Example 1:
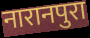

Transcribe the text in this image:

नारानपुरा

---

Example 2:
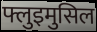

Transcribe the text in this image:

फ्लुइमुसिल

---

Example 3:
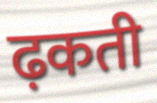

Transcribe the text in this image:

ढ़कती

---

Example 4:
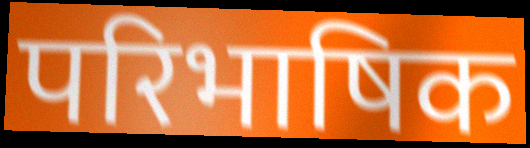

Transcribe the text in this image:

परिभाषिक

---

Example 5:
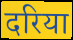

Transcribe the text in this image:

दरिया